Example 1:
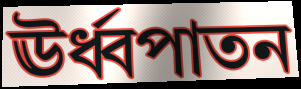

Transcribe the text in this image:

ঊর্ধ্বপাতন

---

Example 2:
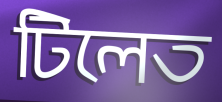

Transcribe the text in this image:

টিলেত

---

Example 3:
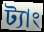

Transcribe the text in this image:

ট্যাং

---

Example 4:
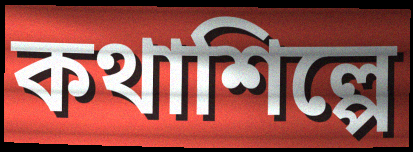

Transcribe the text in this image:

কথাশিল্পে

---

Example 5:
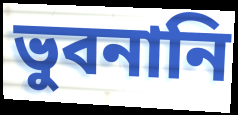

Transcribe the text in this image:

ভুবনানি